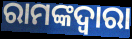
ରାମଙ୍କଦ୍ଵାରା